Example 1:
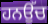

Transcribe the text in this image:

ਹਨਉੱਚ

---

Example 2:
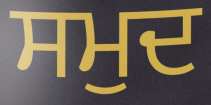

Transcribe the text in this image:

ਸਮੁਦ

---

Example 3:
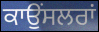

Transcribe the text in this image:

ਕਾਉਂਸਲਰਾਂ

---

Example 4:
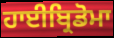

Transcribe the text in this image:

ਹਾਈਬ੍ਰਿਡੋਮਾ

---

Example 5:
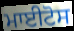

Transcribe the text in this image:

ਮਾਈਟੋਸ